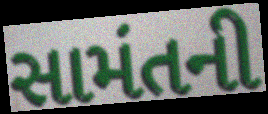
સામંતની